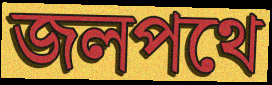
জলপথে